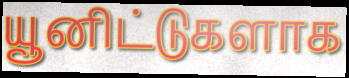
யூனிட்டுகளாக